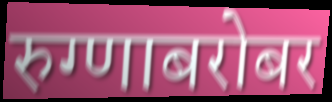
रुग्णाबरोबर